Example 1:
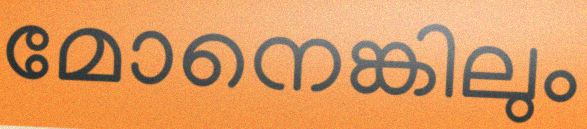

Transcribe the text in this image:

മോനെങ്കിലും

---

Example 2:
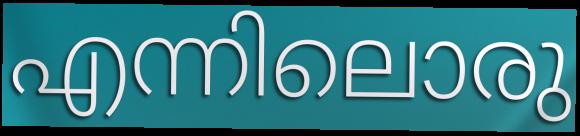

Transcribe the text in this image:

എന്നിലൊരു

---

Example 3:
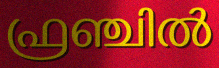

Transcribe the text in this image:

ഫ്രഞ്ചിൽ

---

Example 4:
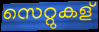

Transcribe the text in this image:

സെറ്റുകള്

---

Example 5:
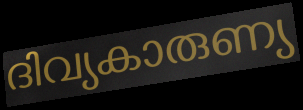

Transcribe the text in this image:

ദിവ്യകാരുണ്യ